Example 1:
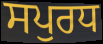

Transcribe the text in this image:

ਸਪੁਰਧ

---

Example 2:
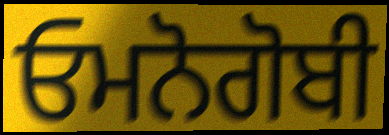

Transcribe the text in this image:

ਓਮਨੋਗੋਬੀ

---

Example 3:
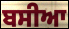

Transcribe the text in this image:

ਬਸੀਆ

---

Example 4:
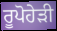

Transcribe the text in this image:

ਰੂਪੋਹੇੜੀ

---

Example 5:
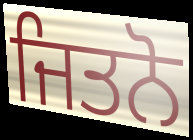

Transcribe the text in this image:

ਜਿਤਨੋ